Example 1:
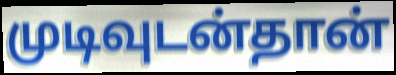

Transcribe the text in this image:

முடிவுடன்தான்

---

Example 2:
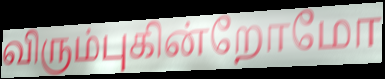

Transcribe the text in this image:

விரும்புகின்றோமோ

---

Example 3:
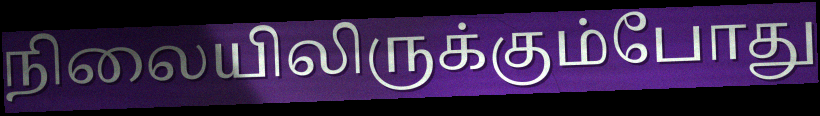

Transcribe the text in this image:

நிலையிலிருக்கும்போது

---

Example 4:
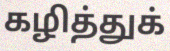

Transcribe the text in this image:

கழித்துக்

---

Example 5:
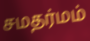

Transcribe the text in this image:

சமதர்மம்